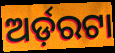
ଅର୍ଡ଼ରଟା